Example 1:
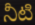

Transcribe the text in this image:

నీటి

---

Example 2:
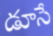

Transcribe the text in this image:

డూసే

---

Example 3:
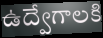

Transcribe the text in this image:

ఉద్వేగాలకి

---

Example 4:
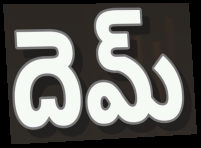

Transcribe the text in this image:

దెమ్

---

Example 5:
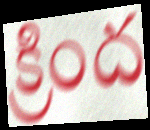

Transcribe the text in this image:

క్రింద